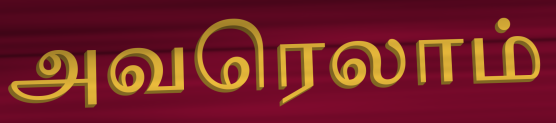
அவரெலாம்